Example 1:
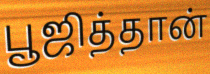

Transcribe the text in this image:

பூஜித்தான்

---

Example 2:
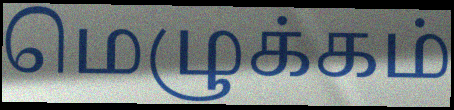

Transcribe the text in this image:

மெழுக்கம்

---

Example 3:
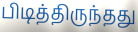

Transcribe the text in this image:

பிடித்திருந்தது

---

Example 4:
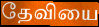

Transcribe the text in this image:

தேவியை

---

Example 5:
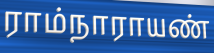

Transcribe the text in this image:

ராம்நாராயண்